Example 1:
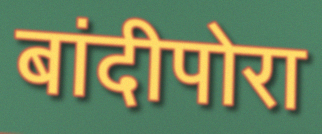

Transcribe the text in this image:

बांदीपोरा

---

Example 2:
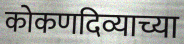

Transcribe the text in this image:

कोकणदिव्याच्या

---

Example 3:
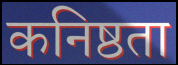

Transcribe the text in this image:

कनिष्ठता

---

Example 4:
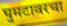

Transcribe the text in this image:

घुमटावरचा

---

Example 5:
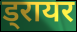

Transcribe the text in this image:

ड्रायर